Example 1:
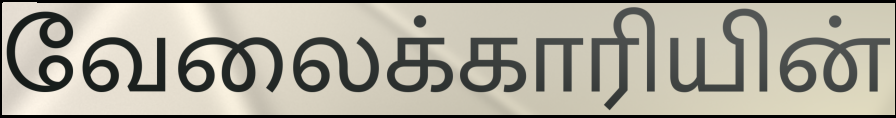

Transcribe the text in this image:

வேலைக்காரியின்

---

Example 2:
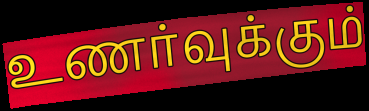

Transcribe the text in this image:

உணர்வுக்கும்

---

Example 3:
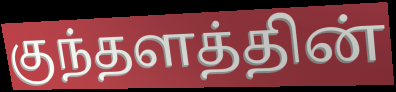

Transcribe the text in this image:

குந்தளத்தின்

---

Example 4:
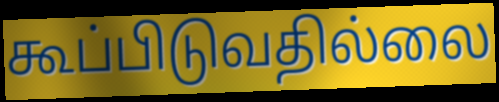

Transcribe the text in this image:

கூப்பிடுவதில்லை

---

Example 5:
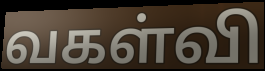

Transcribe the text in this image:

வகள்வி